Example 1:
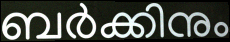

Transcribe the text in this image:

ബർക്കിനും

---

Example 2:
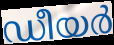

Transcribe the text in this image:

ഡീയർ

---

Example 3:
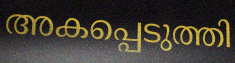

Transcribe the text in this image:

അകപ്പെടുത്തി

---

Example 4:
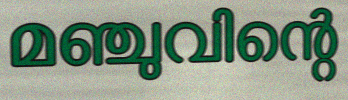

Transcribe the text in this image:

മഞ്ചുവിന്റെ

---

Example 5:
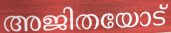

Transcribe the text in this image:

അജിതയോട്